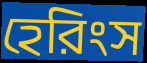
হেরিংস